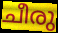
ചീരു